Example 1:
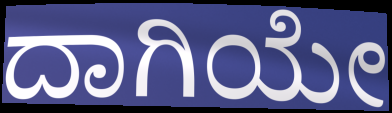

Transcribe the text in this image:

ದಾಗಿಯೇ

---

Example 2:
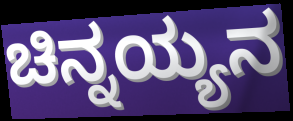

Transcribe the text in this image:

ಚಿನ್ನಯ್ಯನ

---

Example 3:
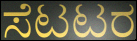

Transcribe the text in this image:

ಸೆಟಟರ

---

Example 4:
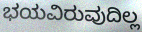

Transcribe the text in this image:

ಭಯವಿರುವುದಿಲ್ಲ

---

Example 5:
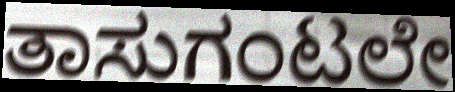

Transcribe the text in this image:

ತಾಸುಗಂಟಲೇ